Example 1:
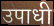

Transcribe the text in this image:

उपाधी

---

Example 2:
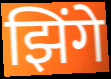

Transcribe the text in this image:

झिंगे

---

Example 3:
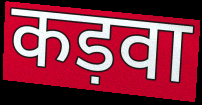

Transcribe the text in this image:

कड़वा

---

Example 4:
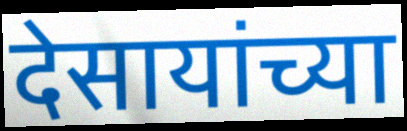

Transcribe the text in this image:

देसायांच्या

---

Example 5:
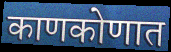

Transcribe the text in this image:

काणकोणात